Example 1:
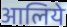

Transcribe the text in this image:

आलिये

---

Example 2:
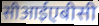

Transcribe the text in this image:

सीआईएबीसी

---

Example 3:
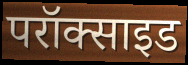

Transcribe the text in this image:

परॉक्साइड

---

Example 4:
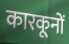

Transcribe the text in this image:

कारकूनों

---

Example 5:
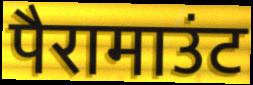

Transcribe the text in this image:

पैरामाउंट